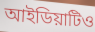
আইডিয়াটিও